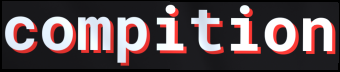
compition